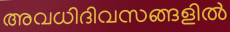
അവധിദിവസങ്ങളിൽ